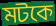
মটকে